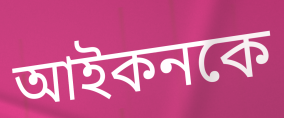
আইকনকে